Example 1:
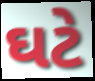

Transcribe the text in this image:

ઘટે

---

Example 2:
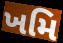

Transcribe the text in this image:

ખમિ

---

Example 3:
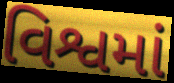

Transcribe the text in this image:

વિશ્વમાં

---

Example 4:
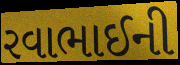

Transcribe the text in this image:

રવાભાઈની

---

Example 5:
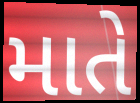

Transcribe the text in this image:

માતે